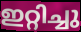
ഇറ്റിച്ചു